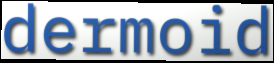
dermoid